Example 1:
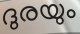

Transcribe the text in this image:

ദുരയും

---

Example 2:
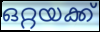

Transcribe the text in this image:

ഒറ്റയക്ക്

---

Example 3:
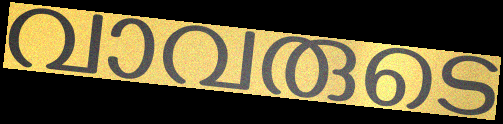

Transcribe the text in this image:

വാവരുടെ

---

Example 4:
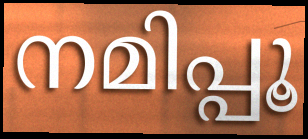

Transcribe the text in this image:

നമിപ്പൂ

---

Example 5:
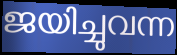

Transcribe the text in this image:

ജയിച്ചുവന്ന